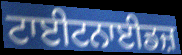
ਟਾਈਟਨਾਈਡਜ਼